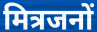
मित्रजनों